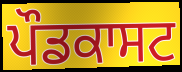
ਪੌਡਕਾਸਟ